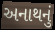
અનાથનું